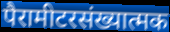
पैरामीटरसंख्यात्मक